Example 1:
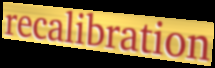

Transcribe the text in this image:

recalibration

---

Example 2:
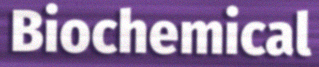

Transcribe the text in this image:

Biochemical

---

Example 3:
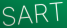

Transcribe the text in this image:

SART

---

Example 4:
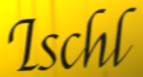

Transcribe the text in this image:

Ischl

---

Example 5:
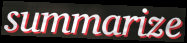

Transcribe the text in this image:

summarize